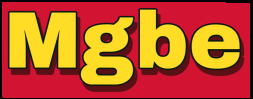
Mgbe